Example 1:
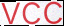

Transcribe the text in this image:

vcc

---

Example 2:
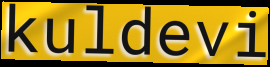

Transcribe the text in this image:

kuldevi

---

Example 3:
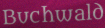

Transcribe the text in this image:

Buchwald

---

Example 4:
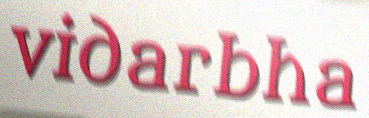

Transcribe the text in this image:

vidarbha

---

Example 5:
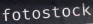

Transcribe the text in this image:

fotostock